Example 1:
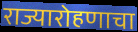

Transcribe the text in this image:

राज्यारोहणाचा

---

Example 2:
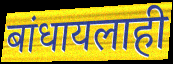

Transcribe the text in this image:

बांधायलाही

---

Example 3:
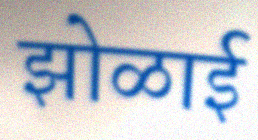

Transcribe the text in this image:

झोळाई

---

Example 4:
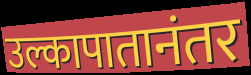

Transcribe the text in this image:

उल्कापातानंतर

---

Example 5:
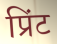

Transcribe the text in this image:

प्रिंट